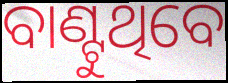
ବାଣ୍ଟୁଥିବେ